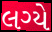
લગ્યે